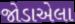
જોડાએલા